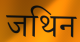
जथिन